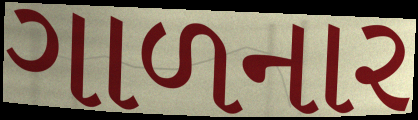
ગાળનાર